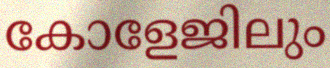
കോളേജിലും